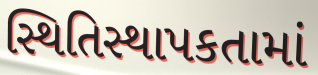
સ્થિતિસ્થાપકતામાં